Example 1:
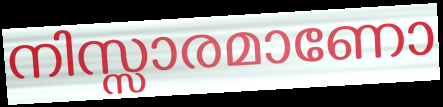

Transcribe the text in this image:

നിസ്സാരമാണോ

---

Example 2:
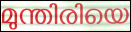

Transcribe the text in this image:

മുന്തിരിയെ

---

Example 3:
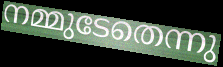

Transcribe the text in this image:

നമ്മുടേതെന്നു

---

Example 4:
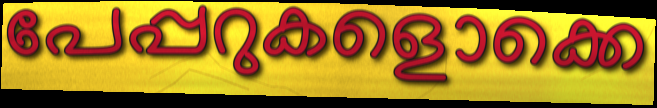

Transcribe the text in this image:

പേപ്പറുകളൊക്കെ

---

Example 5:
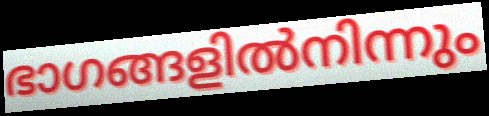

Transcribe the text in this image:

ഭാഗങ്ങളിൽനിന്നും